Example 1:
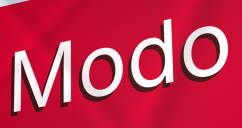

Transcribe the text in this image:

Modo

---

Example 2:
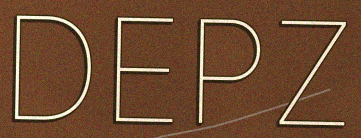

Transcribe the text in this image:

DEPZ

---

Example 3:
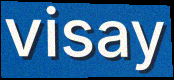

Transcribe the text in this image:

visay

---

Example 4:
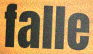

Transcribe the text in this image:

falle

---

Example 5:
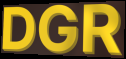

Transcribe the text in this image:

DGR